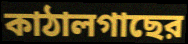
কাঠালগাছের